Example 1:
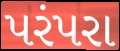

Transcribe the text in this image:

પરંપરા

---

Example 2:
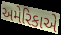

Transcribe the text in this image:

અમેરિકાએ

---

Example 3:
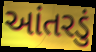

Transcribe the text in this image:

આંતરડું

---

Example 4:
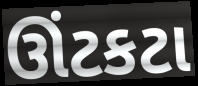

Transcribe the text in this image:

ઊંટકટા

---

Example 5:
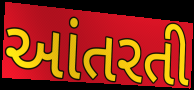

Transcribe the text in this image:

આંતરતી